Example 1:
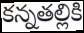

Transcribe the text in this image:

కన్నతల్లికి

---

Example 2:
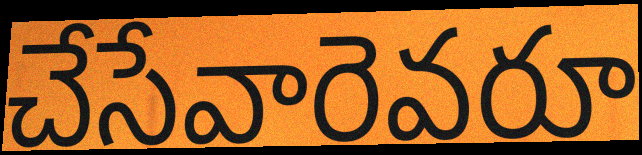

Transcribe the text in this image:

చేసేవారెవరూ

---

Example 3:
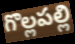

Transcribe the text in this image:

గొల్లపల్లి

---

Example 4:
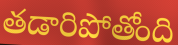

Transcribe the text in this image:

తడారిపోతోంది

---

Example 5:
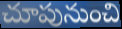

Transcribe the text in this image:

చూపునుంచి